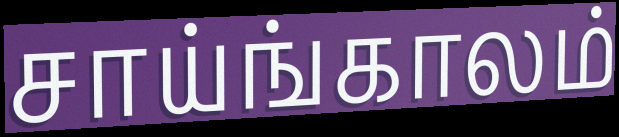
சாய்ங்காலம்